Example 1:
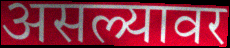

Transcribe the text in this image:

असल्यावर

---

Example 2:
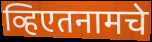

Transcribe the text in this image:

व्हिएतनामचे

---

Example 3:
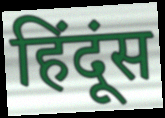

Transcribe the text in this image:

हिंदूंस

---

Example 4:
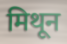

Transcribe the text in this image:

मिथून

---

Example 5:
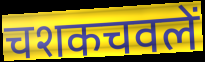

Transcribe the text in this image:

चशकचवलें